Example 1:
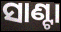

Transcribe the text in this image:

ସାଣ୍ଟା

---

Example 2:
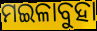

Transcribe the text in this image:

ମଇଳାବୁହା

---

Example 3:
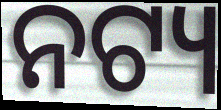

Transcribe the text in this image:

ନଟ୍ୟ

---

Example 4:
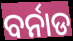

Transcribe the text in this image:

ବର୍ନାଡ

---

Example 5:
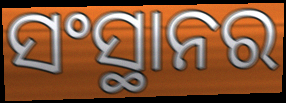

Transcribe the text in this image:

ସଂସ୍ଥାନର